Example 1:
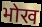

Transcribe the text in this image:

भोख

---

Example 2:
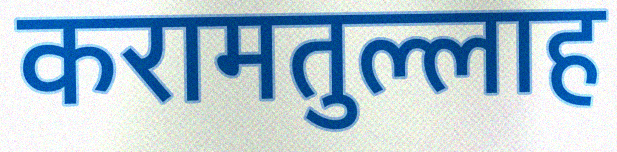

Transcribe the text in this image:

करामतुल्लाह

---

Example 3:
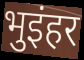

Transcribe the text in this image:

भुइंहर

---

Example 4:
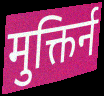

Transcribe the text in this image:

मुक्तिर्न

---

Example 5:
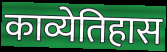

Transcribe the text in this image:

काव्येतिहास